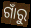
ଗାଁରୁ